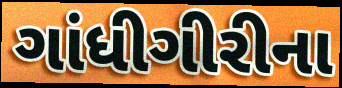
ગાંધીગીરીના